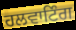
ਹਲਵਾਟਿੰਗ